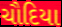
ચૌદિયા